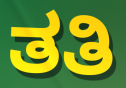
ತತಿ